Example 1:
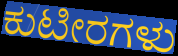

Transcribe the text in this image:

ಕುಟೀರಗಳು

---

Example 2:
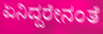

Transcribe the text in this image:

ಏನಿದ್ದರೇನಂತೆ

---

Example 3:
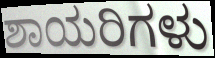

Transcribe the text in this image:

ಶಾಯರಿಗಳು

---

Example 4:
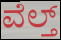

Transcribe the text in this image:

ವೆಲ್ತ್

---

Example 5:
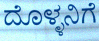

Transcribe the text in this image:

ದೊಳ್ಳನಿಗೆ